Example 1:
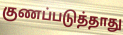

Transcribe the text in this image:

குணப்படுத்தாது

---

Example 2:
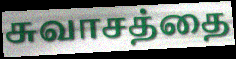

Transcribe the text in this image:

சுவாசத்தை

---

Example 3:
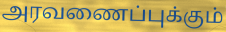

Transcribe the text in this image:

அரவணைப்புக்கும்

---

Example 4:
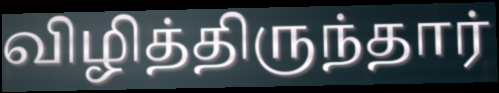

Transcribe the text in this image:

விழித்திருந்தார்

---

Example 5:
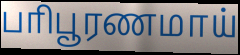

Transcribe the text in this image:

பரிபூரணமாய்